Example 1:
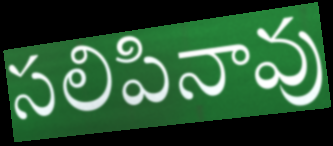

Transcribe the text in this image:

సలిపినావు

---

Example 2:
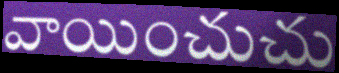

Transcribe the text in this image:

వాయించుచు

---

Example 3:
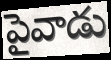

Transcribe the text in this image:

పైవాడు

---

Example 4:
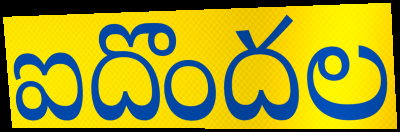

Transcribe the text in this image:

ఐదొందల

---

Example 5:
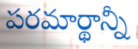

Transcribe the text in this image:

పరమార్థాన్నీ